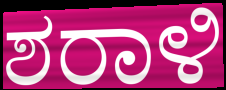
ಶರಾಳಿ